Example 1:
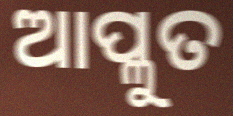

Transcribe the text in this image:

ଆପ୍ଳୁତ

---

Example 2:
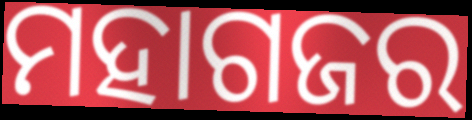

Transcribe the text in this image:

ମହାଗଜର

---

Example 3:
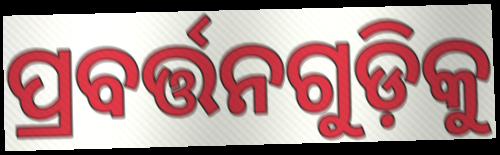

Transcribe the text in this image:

ପ୍ରବର୍ତ୍ତନଗୁଡ଼ିକୁ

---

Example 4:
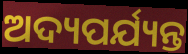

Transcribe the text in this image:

ଅଦ୍ୟପର୍ଯ୍ୟନ୍ତ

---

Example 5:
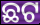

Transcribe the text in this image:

ଛଟ